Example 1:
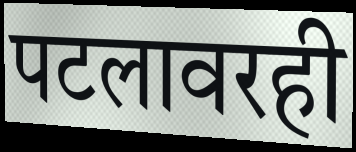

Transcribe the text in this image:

पटलावरही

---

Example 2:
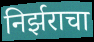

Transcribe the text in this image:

निर्झराचा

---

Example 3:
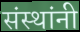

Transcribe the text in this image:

संस्थांनी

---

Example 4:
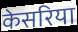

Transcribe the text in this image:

केसरिया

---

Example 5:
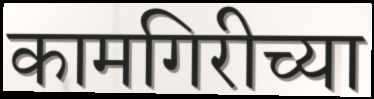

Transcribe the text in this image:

कामगिरीच्या